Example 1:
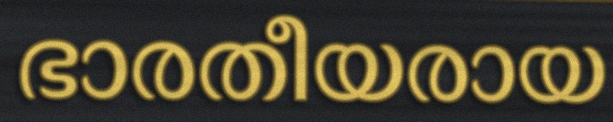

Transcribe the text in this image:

ഭാരതീയരായ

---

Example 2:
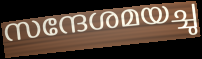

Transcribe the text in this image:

സന്ദേശമയച്ചു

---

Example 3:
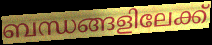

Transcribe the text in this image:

ബന്ധങ്ങളിലേക്ക്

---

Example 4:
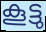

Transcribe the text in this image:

കൂട്ടു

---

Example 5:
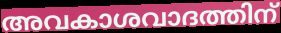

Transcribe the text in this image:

അവകാശവാദത്തിന്